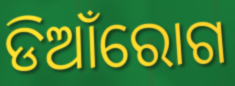
ଡିଆଁରୋଗ